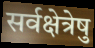
सर्वक्षेत्रेषु